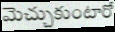
మెచ్చుకుంటారో